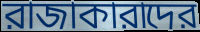
রাজাকারাদের